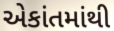
એકાંતમાંથી